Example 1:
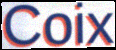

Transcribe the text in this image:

Coix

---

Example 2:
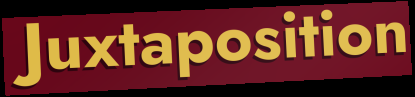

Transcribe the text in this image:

Juxtaposition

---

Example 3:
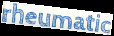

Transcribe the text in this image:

rheumatic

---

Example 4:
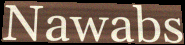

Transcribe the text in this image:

Nawabs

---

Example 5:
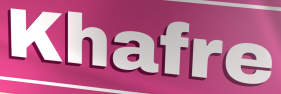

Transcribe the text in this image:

Khafre